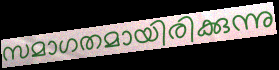
സമാഗതമായിരിക്കുന്നു